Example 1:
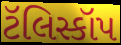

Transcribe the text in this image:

ટૅલિસ્કૉપ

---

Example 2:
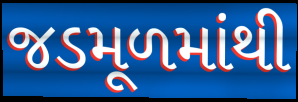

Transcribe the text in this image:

જડમૂળમાંથી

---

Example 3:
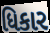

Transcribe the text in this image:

ધિકાર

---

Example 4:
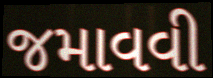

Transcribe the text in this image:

જમાવવી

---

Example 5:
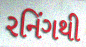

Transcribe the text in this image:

રનિંગથી